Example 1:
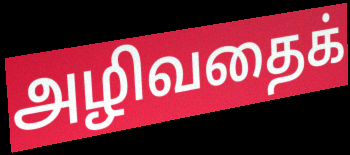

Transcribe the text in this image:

அழிவதைக்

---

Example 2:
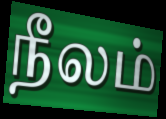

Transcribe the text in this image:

நீலம்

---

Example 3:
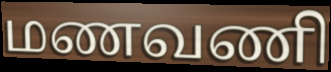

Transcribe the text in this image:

மணவணி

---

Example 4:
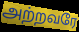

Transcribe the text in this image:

அற்றவரே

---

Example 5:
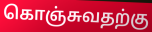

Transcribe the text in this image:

கொஞ்சுவதற்கு